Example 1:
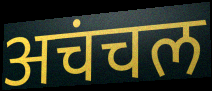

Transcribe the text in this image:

अचंचल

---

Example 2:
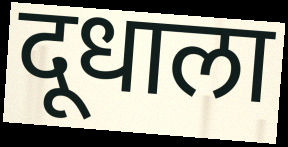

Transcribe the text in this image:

दूधाला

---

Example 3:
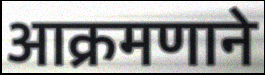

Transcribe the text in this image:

आक्रमणाने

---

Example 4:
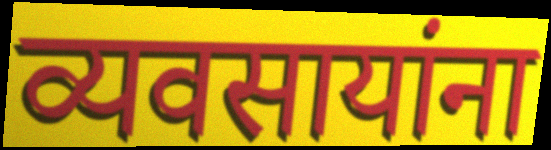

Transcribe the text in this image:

व्यवसायांना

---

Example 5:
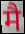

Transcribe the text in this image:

मै